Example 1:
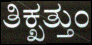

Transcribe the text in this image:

ತಿಕ್ಖತ್ತುಂ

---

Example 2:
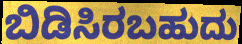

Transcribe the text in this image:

ಬಿಡಿಸಿರಬಹುದು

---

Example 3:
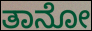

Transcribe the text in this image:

ತಾನೋ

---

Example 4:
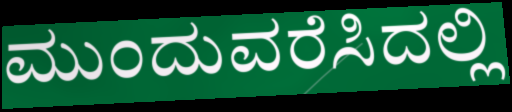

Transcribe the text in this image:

ಮುಂದುವರೆಸಿದಲ್ಲಿ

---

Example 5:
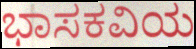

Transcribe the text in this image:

ಭಾಸಕವಿಯ